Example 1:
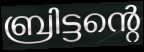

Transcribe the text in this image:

ബ്രിട്ടന്റെ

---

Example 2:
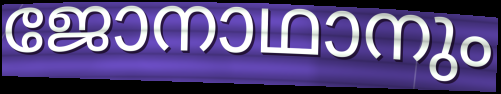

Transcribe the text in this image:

ജോനാഥാനും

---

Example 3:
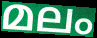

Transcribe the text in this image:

മലം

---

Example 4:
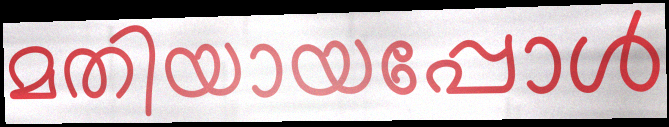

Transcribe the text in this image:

മതിയായപ്പോൾ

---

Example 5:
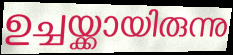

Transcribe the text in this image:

ഉച്ചയ്ക്കായിരുന്നു